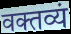
वक्तव्यं